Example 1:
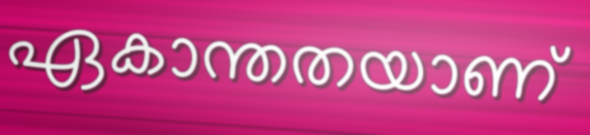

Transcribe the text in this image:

ഏകാന്തതയാണ്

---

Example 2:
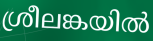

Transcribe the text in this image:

ശ്രീലങ്കയിൽ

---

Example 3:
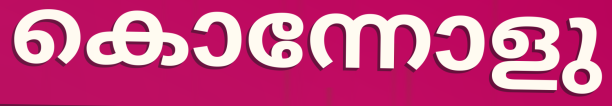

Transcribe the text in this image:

കൊന്നോളു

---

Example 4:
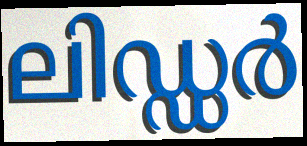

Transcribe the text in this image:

ലിഡ്ഡർ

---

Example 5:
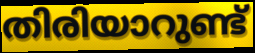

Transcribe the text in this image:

തിരിയാറുണ്ട്